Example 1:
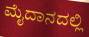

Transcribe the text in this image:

ಮೈದಾನದಲ್ಲಿ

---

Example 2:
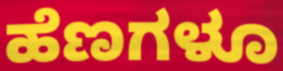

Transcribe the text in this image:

ಹೆಣಗಳೂ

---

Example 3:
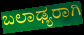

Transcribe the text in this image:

ಬಲಾಢ್ಯರಾಗಿ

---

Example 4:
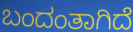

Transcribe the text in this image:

ಬಂದಂತಾಗಿದೆ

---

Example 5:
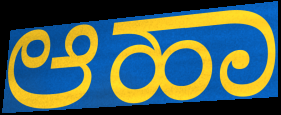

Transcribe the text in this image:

ಆಹಾ